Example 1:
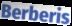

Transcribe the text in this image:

Berberis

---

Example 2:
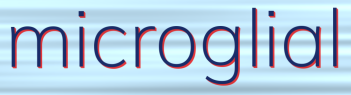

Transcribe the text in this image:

microglial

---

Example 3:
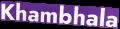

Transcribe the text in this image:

Khambhala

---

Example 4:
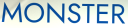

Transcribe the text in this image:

MONSTER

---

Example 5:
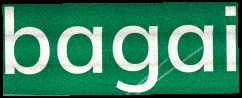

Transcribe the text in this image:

bagai